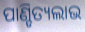
ପାଣ୍ଡିତ୍ୟଲାଭ